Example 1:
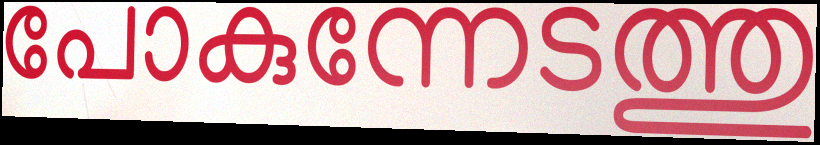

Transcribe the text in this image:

പോകുന്നേടത്തു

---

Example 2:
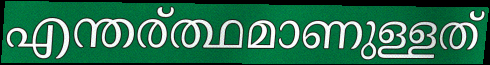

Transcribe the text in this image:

എന്തര്ത്ഥമാണുള്ളത്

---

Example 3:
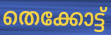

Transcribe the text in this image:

തെക്കോട്ട്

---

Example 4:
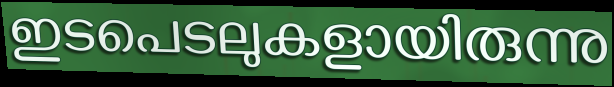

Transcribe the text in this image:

ഇടപെടലുകളായിരുന്നു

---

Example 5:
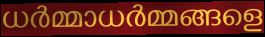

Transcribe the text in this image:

ധർമ്മാധർമ്മങ്ങളെ